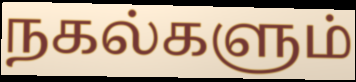
நகல்களும்